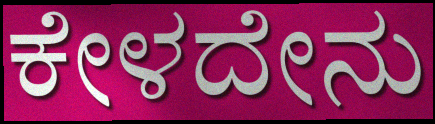
ಕೇಳದೇನು